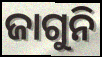
ଜାଗୁନି